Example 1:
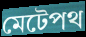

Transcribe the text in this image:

মেটেপথ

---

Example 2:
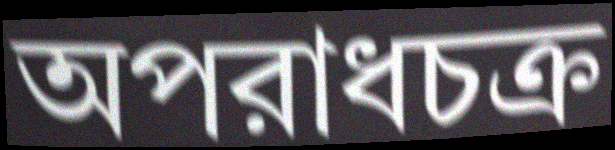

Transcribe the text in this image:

অপরাধচক্র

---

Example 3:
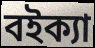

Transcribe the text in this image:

বইক্যা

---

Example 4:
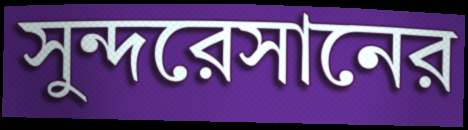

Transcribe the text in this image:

সুন্দরেসানের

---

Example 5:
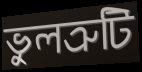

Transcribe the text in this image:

ভুলত্রুটি